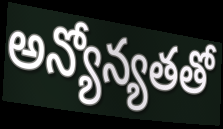
అన్యోన్యతతో